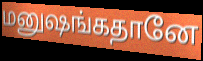
மனுஷங்கதானே